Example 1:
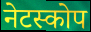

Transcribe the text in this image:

नेटस्कोप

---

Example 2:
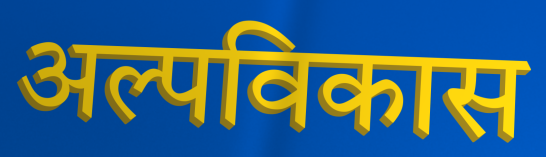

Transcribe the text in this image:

अल्पविकास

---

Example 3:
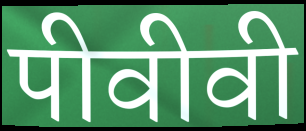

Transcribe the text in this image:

पीवीवी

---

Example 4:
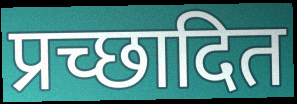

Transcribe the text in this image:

प्रच्छादित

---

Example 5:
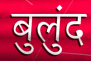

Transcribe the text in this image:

बुलुंद